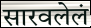
सारवलेलं